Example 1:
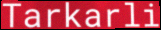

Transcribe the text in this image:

Tarkarli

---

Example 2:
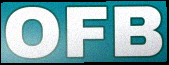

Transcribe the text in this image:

OFB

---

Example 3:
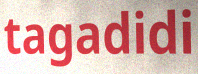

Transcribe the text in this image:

tagadidi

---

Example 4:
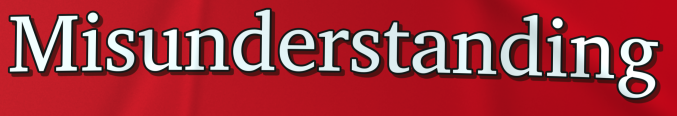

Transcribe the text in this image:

Misunderstanding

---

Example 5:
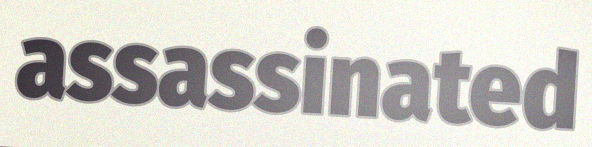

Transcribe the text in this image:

assassinated